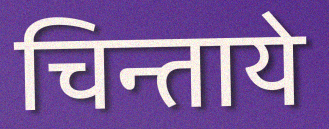
चिन्ताये